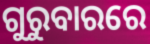
ଗୁରୁବାରରେ